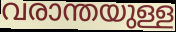
വരാന്തയുള്ള